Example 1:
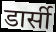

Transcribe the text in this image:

डार्सी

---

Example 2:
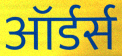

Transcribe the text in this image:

ऑर्डर्स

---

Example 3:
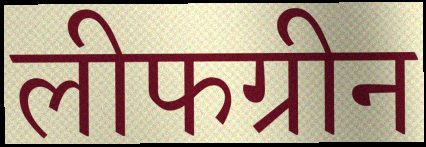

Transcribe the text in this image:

लीफग्रीन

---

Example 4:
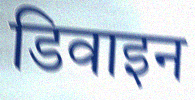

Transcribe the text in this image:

डिवाइन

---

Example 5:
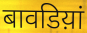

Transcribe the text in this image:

बावडिय़ां